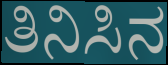
ತಿನಿಸಿನ